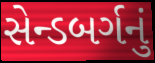
સેન્ડબર્ગનું